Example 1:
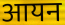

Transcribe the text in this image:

आयन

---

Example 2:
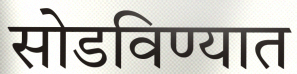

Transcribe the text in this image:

सोडविण्यात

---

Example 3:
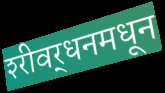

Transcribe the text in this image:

श्रीवर्धनमधून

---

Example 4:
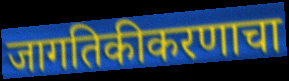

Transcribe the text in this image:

जागतिकीकरणाचा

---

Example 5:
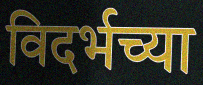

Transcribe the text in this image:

विदर्भच्या